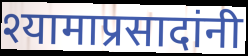
श्यामाप्रसादांनी